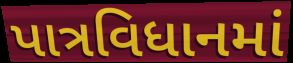
પાત્રવિધાનમાં